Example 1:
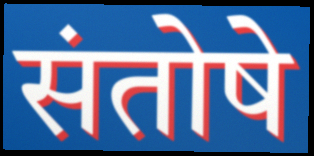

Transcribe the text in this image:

संतोषे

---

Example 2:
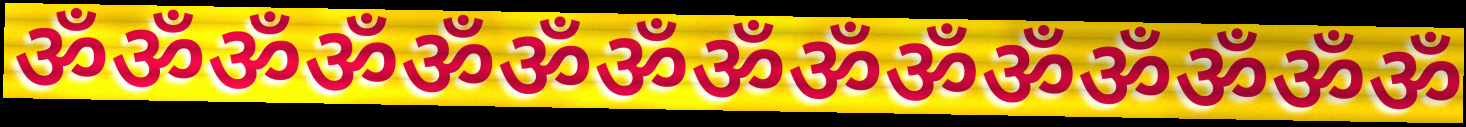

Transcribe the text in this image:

ॐॐॐॐॐॐॐॐॐॐॐॐॐॐॐ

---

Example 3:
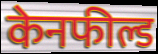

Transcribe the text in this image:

केनफील्ड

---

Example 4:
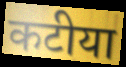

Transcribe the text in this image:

कटीया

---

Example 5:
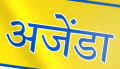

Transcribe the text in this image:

अजेंडा